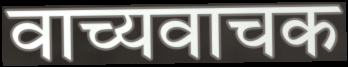
वाच्यवाचक